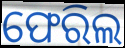
ଫେରିଲ